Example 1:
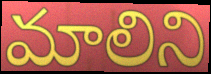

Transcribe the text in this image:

మాలిని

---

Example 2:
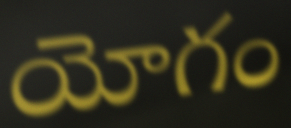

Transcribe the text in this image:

యోగం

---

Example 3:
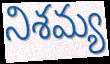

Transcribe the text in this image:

నిశమ్య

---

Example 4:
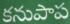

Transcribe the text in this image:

కనుపాప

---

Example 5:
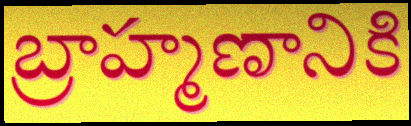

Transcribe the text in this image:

బ్రాహ్మణానికి